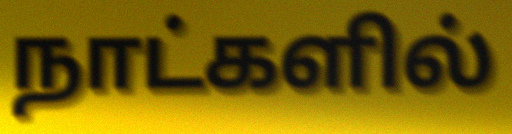
நாட்களில்